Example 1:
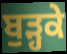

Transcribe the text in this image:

ਬੁੜ੍ਹਕੇ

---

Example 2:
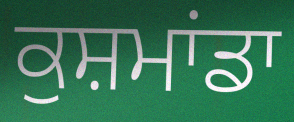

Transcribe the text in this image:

ਕੁਸ਼ਮਾਂਡਾ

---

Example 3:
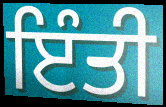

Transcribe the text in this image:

ਇੰਤੀ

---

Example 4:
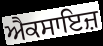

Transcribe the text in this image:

ਐਕਸਾਇਜ਼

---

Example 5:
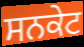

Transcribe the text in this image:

ਸਨਕੇਟ